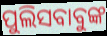
ପୁଲିସବାବୁଙ୍କ